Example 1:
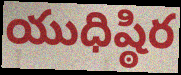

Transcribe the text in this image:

యుధిష్ఠిర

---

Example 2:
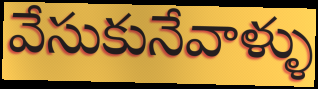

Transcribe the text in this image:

వేసుకునేవాళ్ళు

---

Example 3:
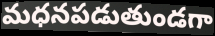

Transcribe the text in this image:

మధనపడుతుండగా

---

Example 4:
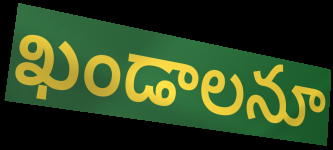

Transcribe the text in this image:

ఖండాలనూ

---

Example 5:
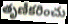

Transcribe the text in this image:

తృణీకరించు